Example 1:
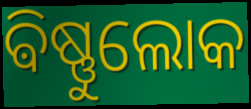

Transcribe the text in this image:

ଵିଷ୍ଣୁଲୋକ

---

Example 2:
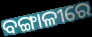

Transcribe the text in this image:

ବଙ୍ଗାଳୀରେ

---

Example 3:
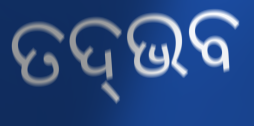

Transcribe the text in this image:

ତଦ୍‌ଭବ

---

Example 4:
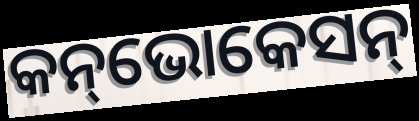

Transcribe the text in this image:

କନ୍‌ଭୋକେସନ୍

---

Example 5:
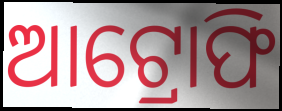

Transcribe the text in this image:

ଆଟ୍ରୋଫି